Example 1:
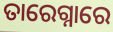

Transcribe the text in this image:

ତାରେଗ୍ନାରେ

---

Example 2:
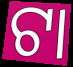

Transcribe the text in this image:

ଟା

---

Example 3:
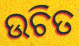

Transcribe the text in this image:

ଉଚିତ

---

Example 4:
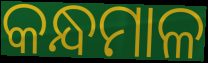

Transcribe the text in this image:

କନ୍ଧମାଳ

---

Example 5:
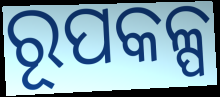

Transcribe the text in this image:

ରୂପକଳ୍ପ